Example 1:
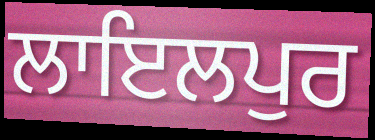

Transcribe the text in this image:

ਲਾਇਲਪੁਰ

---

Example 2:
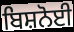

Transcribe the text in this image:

ਬਿਸ਼ਨੋਈ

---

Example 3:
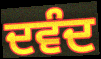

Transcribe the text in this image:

ਦਵੰਦ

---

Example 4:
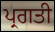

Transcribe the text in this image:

ਪ੍ਰਗਤੀ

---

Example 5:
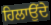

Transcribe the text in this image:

ਹਿਲਾਉਂਦੇ